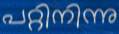
പറ്റിനിന്നു